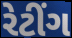
રેટીંગ